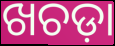
ଖଚଡ଼ା